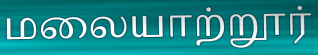
மலையாற்றூர்